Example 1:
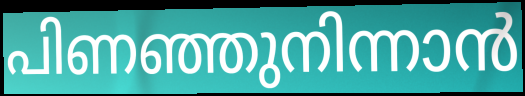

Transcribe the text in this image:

പിണഞ്ഞുനിന്നാൻ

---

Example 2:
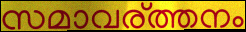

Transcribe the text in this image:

സമാവര്ത്തനം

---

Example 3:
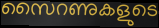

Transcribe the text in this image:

സൈറണുകളുടെ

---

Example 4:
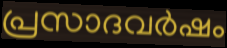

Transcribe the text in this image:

പ്രസാദവർഷം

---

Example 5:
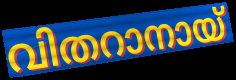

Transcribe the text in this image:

വിതറാനായ്